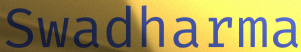
Swadharma